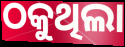
ଠକୁଥିଲା